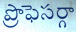
ప్రొఫెసర్గా